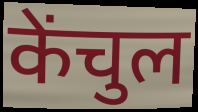
केंचुल